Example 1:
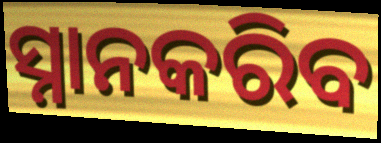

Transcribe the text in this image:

ସ୍ନାନକରିବ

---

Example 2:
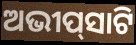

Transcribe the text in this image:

ଅଭୀପ୍‌ସାଟି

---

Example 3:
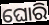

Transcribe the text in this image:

ଘୋରି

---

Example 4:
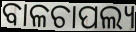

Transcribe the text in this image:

ବାଳଚାପଲ୍ୟ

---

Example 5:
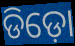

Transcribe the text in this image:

ଡିଡ଼ୋ